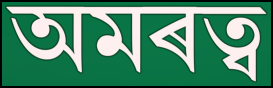
অমৰত্ব